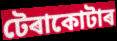
টেৰাকোটাৰ